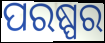
ପରଷ୍ପର